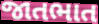
જાતભાત